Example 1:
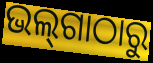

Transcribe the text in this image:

ଭଲ୍‌ଗାଠାରୁ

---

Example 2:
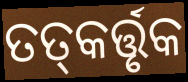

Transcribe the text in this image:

ତତ୍‌କର୍ତ୍ତୃକ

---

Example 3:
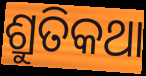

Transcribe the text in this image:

ଶ୍ରୁତିକଥା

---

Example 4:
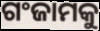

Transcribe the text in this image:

ଗଂଜାମକୁ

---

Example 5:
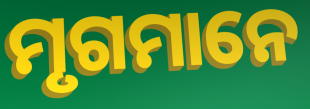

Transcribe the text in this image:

ମୃଗମାନେ